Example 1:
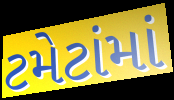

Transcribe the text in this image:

ટમેટાંમાં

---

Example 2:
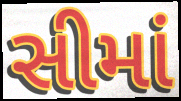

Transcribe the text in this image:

સીમાં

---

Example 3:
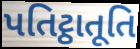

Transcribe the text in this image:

પતિટ્ઠાતૂતિ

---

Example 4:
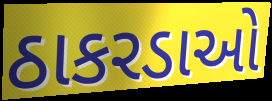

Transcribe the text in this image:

ઠાકરડાઓ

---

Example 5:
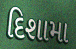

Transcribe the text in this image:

દિશામા